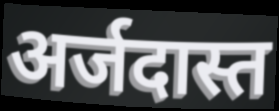
अर्जदास्त